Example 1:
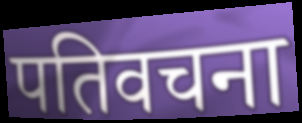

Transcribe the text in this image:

पतिवचना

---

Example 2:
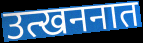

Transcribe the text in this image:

उत्खननात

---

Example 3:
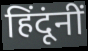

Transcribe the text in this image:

हिंदूंनीं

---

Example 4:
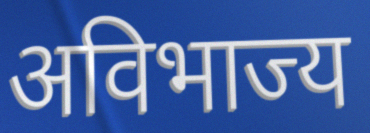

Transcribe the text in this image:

अविभाज्य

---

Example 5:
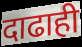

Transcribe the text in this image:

दाढाही